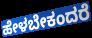
ಹೇಳಬೇಕಂದರೆ